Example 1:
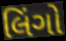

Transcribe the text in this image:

લિંગો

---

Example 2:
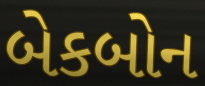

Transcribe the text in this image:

બેકબોન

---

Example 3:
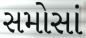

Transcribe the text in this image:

સમોસાં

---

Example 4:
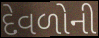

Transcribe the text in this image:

દેવળોની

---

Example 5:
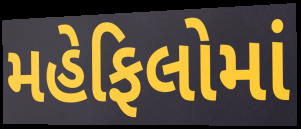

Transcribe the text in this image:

મહેફિલોમાં